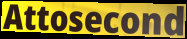
Attosecond